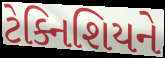
ટેક્નિશિયને